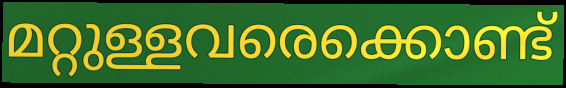
മറ്റുള്ളവരെക്കൊണ്ട്